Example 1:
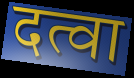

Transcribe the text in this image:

दत्वा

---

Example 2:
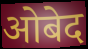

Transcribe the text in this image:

ओबेद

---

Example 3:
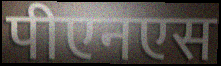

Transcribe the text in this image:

पीएनएस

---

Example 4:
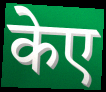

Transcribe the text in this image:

केए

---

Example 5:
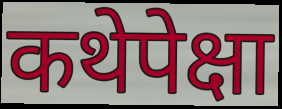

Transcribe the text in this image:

कथेपेक्षा